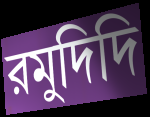
রমুদিদি